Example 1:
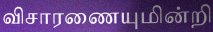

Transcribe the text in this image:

விசாரணையுமின்றி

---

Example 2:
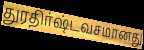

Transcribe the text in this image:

துரதிர்ஷ்டவசமானது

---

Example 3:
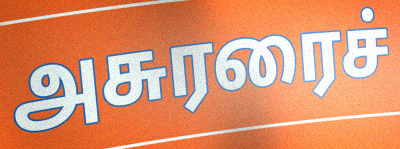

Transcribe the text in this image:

அசுரரைச்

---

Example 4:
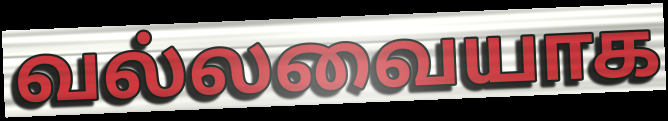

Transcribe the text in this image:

வல்லவையாக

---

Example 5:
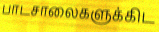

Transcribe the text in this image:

பாடசாலைகளுக்கிட